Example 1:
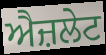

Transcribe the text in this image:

ਐਜ਼ਲੇਟ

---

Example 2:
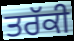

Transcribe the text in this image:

ਤਰੱਕੀ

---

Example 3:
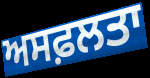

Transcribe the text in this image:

ਅਸਫ਼ਲਤਾ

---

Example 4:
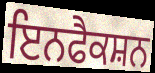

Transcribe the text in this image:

ਇਨਫੈਕਸ਼ਨ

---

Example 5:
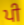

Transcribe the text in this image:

ਪੀ